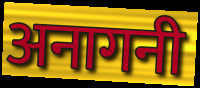
अनागनी